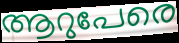
ആറുപേരെ